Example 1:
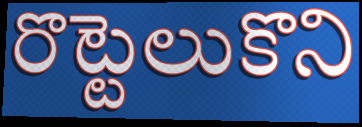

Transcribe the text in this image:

రొట్టెలుకొని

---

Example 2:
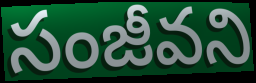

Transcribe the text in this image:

సంజీవని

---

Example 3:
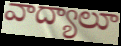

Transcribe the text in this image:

వాద్యాలూ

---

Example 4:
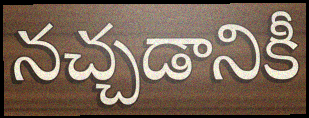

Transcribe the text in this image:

నచ్చడానికీ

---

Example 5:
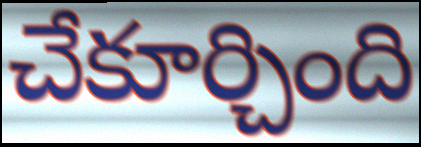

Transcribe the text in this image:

చేకూర్చింది